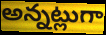
అన్నట్లుగా